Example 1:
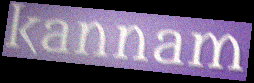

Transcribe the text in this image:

kannam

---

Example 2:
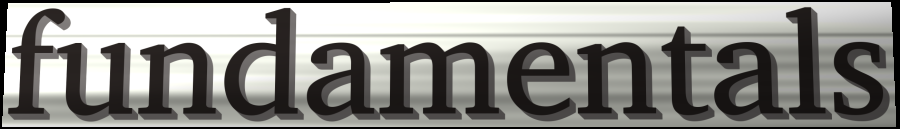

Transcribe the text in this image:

fundamentals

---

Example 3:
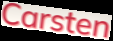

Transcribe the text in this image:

Carsten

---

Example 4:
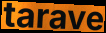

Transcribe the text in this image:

tarave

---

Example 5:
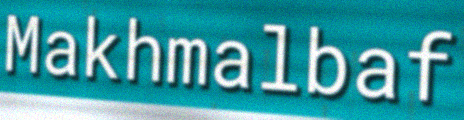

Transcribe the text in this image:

Makhmalbaf